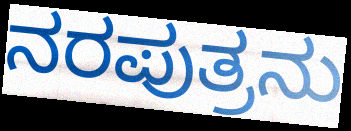
ನರಪುತ್ರನು